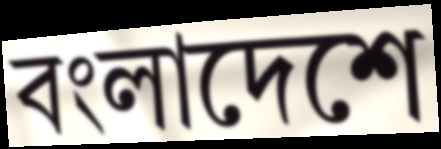
বংলাদেশে